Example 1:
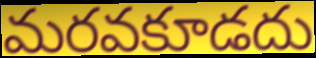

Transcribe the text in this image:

మరవకూడదు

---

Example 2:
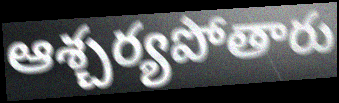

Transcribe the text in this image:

ఆశ్చర్యపోతారు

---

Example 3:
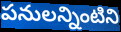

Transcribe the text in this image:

పనులన్నింటిని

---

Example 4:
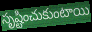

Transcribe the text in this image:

సృష్టించుకుంటాయి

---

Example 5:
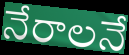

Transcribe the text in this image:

నేరాలనే